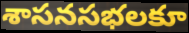
శాసనసభలకూ